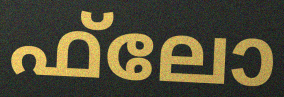
ഫ്‌ലോ